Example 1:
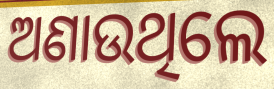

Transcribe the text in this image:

ଅଣାଉଥିଲେ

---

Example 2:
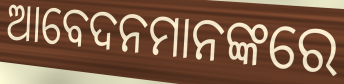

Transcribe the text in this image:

ଆବେଦନମାନଙ୍କରେ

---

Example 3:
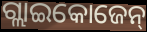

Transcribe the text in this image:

ଗ୍ଲାଇକୋଜେନ୍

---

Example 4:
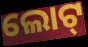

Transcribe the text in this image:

ଲୋଟ୍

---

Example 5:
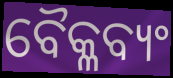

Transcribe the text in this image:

ବୈକ୍ଳବ୍ୟଂ